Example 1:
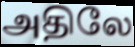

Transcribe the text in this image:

அதிலே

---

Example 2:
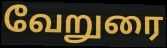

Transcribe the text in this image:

வேறுரை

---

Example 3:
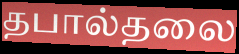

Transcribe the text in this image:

தபால்தலை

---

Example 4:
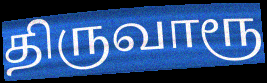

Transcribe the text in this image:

திருவாரூ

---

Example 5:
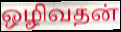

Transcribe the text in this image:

ஒழிவதன்